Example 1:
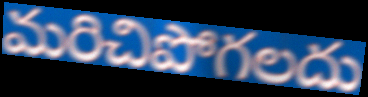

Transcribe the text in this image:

మరిచిపోగలదు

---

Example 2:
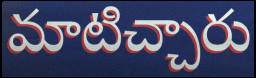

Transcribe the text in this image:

మాటిచ్చారు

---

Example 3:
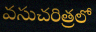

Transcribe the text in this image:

వసుచరిత్రలో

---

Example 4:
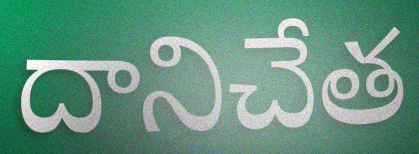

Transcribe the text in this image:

దానిచేత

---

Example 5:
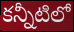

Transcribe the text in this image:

కన్నీటిలో